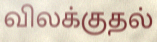
விலக்குதல்